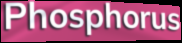
Phosphorus